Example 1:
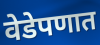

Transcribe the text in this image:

वेडेपणात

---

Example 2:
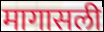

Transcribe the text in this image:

मागासली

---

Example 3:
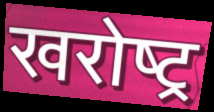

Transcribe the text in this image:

खरोष्ट्र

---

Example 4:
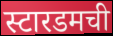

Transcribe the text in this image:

स्टारडमची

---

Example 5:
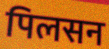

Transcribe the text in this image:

पिलसन